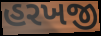
હરખજી